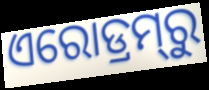
ଏରୋଡ୍ରମ୍‍ରୁ